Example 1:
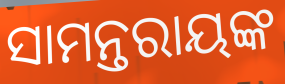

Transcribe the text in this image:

ସାମନ୍ତରାୟଙ୍କ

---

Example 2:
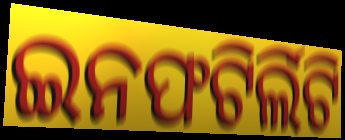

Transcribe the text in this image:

ଇନଫଟିର୍ଲିଟି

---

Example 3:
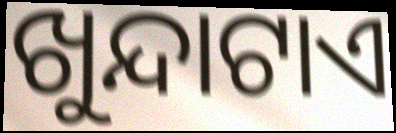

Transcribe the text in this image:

ଖୁନ୍ଦାଟାଏ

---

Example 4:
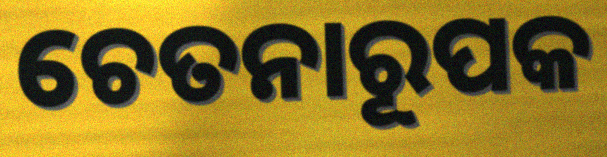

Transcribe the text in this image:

ଚେତନାରୂପକ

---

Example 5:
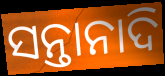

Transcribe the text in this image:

ସନ୍ତାନାଦି